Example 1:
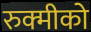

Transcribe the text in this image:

रुक्मीको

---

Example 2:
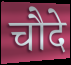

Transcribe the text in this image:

चौदे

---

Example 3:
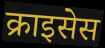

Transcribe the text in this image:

क्राइसेस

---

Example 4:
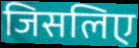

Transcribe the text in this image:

जिसलिए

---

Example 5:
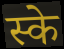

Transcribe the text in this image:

स्के